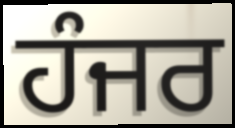
ਹੰਜਰ